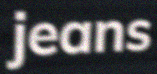
jeans